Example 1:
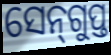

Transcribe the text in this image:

ସେନ୍‌ଗୁପ୍ତ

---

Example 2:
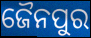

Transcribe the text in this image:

ଜୈନପୁର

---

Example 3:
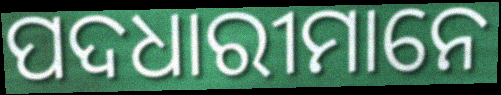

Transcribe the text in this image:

ପଦଧାରୀମାନେ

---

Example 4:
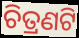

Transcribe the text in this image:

ଚିତ୍ରଣଟି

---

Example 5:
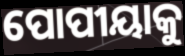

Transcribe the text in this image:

ପୋପୀୟାକୁ